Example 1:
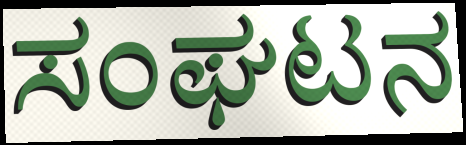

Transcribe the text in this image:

ಸಂಘಟನ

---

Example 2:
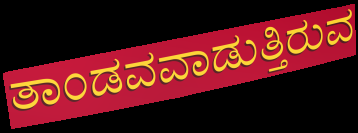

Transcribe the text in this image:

ತಾಂಡವವಾಡುತ್ತಿರುವ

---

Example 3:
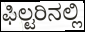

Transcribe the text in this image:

ಫಿಲ್ಟರಿನಲ್ಲಿ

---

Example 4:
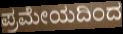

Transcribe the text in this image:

ಪ್ರಮೇಯದಿಂದ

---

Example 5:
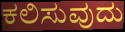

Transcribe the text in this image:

ಕಲಿಸುವುದು